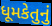
ધૂમકેતુનું